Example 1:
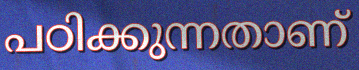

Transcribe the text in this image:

പഠിക്കുന്നതാണ്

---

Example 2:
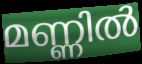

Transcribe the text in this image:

മണ്ണിൽ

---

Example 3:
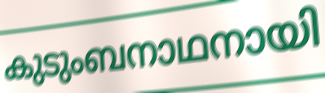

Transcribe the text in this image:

കുടുംബനാഥനായി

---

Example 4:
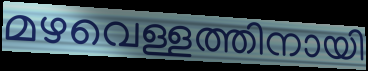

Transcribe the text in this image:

മഴവെള്ളത്തിനായി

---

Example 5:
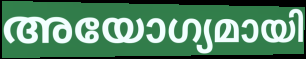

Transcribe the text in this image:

അയോഗ്യമായി